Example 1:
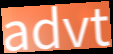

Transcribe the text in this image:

advt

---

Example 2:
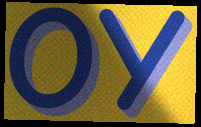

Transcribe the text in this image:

OY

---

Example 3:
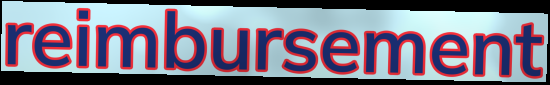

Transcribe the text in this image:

reimbursement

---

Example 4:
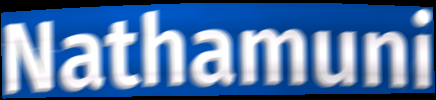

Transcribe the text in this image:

Nathamuni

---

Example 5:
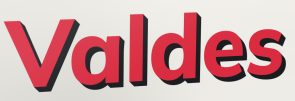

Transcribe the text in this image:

Valdes